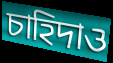
চাহিদাও